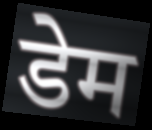
डेम